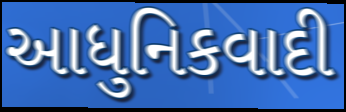
આધુનિકવાદી